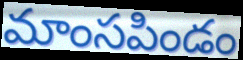
మాంసపిండం